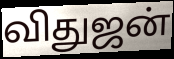
விதுஜன்